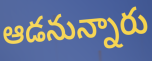
ఆడనున్నారు